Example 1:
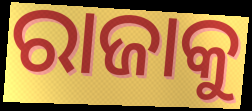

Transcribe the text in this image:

ରାଜାକୁ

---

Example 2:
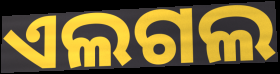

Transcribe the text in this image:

ଏଲଗଲ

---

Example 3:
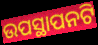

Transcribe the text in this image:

ଉପସ୍ଥାପନଟି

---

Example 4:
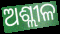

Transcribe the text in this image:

ଅଶ୍ଲୀଳ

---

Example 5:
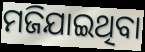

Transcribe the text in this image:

ମଜିଯାଇଥିବା